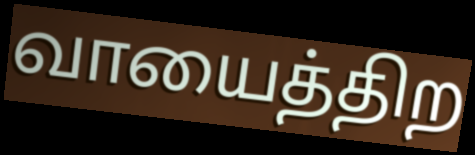
வாயைத்திற